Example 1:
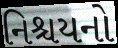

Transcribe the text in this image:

નિશ્ચયનો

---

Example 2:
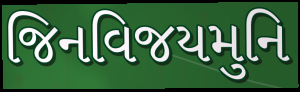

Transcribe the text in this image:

જિનવિજયમુનિ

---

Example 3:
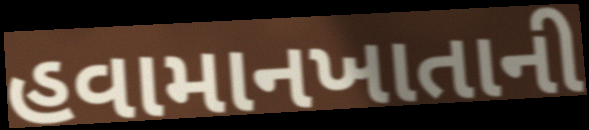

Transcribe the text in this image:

હવામાનખાતાની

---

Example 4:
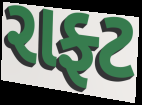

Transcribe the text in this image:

રાફ્ટ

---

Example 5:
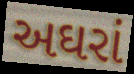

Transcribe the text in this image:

અઘરાં